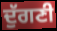
ਦੁੱਗਣੀ